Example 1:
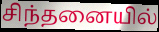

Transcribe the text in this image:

சிந்தனையில்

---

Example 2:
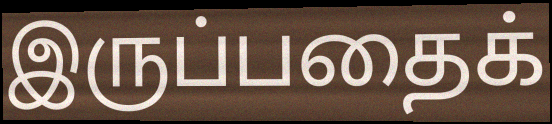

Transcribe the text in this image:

இருப்பதைக்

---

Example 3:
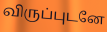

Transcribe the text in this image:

விருப்புடனே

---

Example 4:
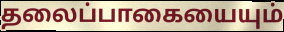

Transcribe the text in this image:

தலைப்பாகையையும்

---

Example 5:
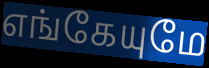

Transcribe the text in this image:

எங்கேயுமே